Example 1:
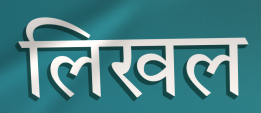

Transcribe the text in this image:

लिखल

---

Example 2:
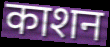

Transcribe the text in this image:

काशन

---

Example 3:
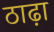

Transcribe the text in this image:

ठाढ़ा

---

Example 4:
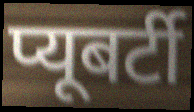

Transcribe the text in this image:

प्‍यूबर्टी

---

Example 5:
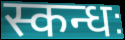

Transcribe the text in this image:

स्कन्धः